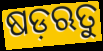
ଷଡ଼ଋତୁ